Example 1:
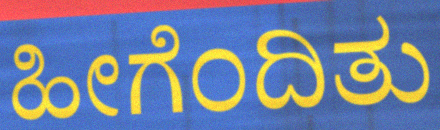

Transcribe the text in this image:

ಹೀಗೆಂದಿತು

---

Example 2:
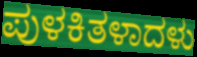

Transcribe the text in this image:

ಪುಳಕಿತಳಾದಳು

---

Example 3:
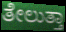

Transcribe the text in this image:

ತೇಲುತ್ತಾ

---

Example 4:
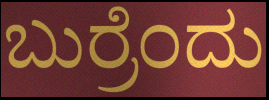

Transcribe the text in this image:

ಬುರ್ರೆಂದು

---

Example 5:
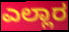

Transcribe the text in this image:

ಎಲ್ಲಾರ